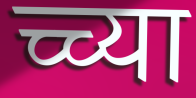
च्च्या